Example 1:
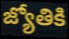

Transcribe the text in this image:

జ్యోతికి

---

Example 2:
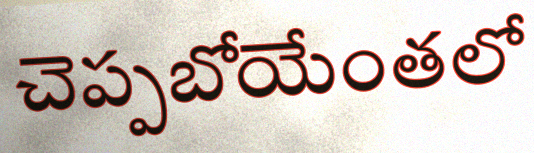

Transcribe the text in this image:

చెప్పబోయేంతలో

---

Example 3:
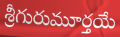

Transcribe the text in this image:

శ్రీగురుమూర్తయే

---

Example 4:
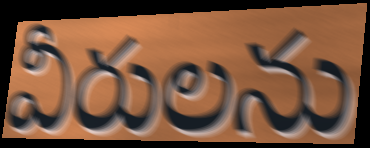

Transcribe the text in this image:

వీరులను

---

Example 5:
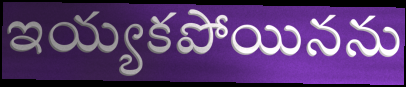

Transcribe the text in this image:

ఇయ్యకపోయినను